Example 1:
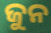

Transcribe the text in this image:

ଜୁନ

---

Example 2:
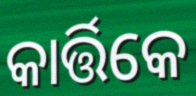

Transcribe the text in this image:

କାର୍ତ୍ତିକେ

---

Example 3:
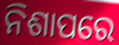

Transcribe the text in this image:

ନିଶାପରେ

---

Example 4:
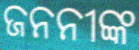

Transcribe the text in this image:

ଜନନୀଙ୍କ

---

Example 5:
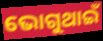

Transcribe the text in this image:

ଭୋଗୁଥାଇଁ